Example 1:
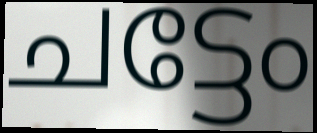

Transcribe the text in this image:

ചട്ടേം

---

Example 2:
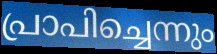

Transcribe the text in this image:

പ്രാപിച്ചെന്നും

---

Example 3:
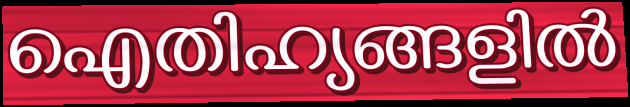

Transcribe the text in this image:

ഐതിഹ്യങ്ങളിൽ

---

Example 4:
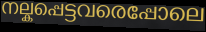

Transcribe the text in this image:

നല്കപ്പെട്ടവരെപ്പോലെ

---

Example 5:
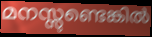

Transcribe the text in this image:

മനസ്സുണ്ടെങ്കിൽ